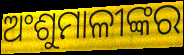
ଅଂଶୁମାଳୀଙ୍କର